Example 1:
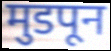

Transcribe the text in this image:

मुडपून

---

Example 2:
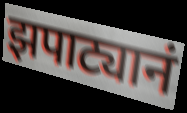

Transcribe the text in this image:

झपाट्यानं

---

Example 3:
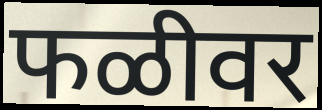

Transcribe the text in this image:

फळीवर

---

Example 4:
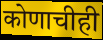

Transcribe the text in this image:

कोणाचीही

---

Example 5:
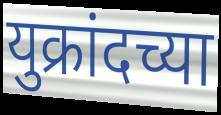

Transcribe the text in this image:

युक्रांदच्या